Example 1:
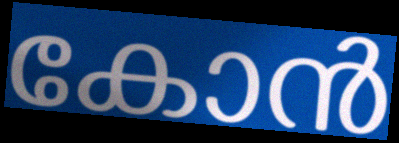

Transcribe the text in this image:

കോൻ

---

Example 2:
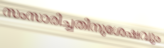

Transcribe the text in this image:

സംസാരിച്ചതിനുശേഷവും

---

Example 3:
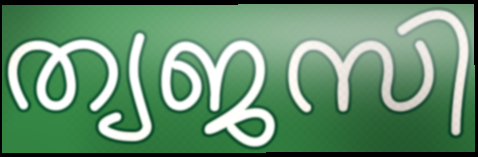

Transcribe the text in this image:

ത്യജസി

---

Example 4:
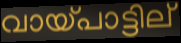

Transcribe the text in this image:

വായ്പാട്ടില്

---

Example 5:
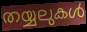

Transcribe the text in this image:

തയ്യലുകൾ